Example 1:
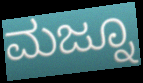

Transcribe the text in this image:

ಮಜ್ನೂ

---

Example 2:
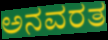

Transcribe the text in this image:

ಅನವರತ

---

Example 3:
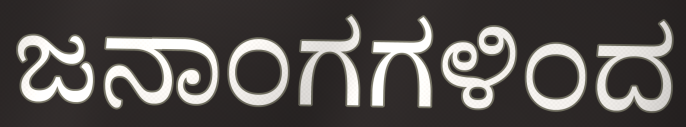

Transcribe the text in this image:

ಜನಾಂಗಗಳಿಂದ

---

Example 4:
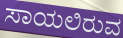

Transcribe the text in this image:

ಸಾಯಲಿರುವ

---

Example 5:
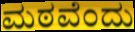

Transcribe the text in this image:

ಮಠವೆಂದು